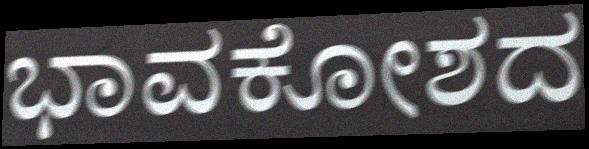
ಭಾವಕೋಶದ